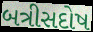
બત્રીસદોષ